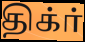
திக்ர்